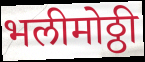
भलीमोठ्ठी